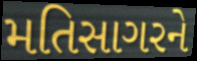
મતિસાગરને